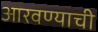
आरवण्याची